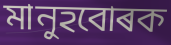
মানুহবোৰক